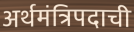
अर्थमंत्रिपदाची